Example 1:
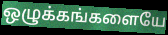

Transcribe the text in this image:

ஒழுக்கங்களையே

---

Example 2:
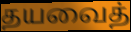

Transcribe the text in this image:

தயவைத்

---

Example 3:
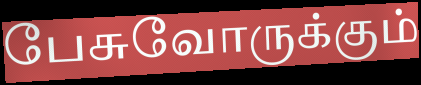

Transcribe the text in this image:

பேசுவோருக்கும்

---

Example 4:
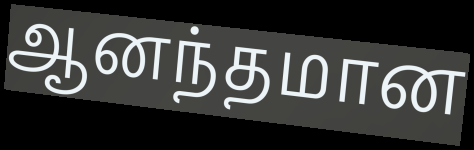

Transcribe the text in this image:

ஆனந்தமான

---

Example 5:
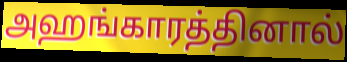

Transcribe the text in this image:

அஹங்காரத்தினால்